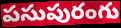
పసుపురంగు